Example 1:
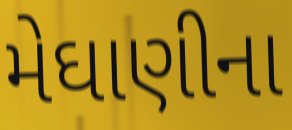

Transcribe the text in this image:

મેઘાણીના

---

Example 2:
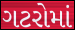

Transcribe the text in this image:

ગટરોમાં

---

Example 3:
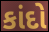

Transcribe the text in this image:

કાંદો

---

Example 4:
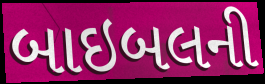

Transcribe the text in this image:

બાઇબલની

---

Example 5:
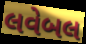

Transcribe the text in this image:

લવેબલ